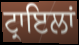
ਟ੍ਰਾਇਲਾਂ